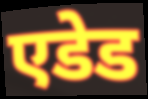
एडेड